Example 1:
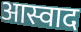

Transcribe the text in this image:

आस्‍वाद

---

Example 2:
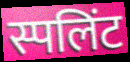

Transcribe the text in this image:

स्पलिंट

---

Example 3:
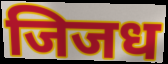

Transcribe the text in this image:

जिजध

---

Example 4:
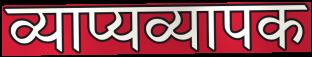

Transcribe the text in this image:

व्याप्यव्यापक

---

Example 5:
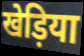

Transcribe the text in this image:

खेड़िया